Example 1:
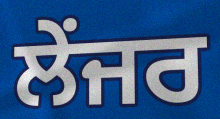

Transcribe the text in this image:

ਲੇਂਜਰ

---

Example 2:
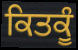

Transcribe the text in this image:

ਕਿਤਕੂੰ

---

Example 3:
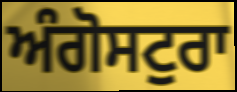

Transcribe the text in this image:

ਅੰਗੋਸਟੁਰਾ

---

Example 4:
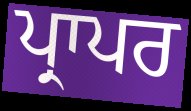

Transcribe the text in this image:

ਪ੍ਰਾਪਰ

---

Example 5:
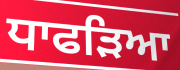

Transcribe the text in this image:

ਧਾਫੜਿਆ